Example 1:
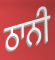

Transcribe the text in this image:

ਠਾਨੀ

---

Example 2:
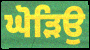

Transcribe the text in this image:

ਘੋੜਿਉ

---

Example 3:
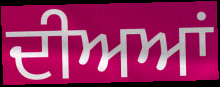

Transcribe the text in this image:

ਦੀਅਆਂ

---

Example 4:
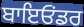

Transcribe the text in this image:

ਬਾਇਓਂਡਰ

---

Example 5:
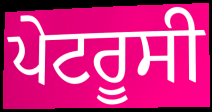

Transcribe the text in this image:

ਪੇਟਰੂਸੀ